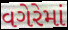
વગેરેમાં